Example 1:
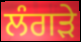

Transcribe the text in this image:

ਲੰਗੜੇ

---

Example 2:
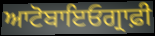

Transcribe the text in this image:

ਆਟੋਬਾਇਓਗ੍ਰਾਫ਼ੀ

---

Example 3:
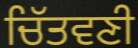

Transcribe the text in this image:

ਚਿੱਤਵਣੀ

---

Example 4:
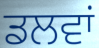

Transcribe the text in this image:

ਡਲਵਾਂ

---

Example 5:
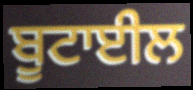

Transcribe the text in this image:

ਬੂਟਾਈਲ